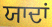
ਯਾਦਾਂ